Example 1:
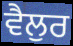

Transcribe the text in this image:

ਵੈਲੁਰ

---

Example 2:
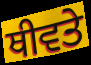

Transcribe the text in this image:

ਥੀਵਤੇ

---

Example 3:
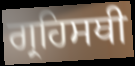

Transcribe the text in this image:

ਗ੍ਰਹਿਸਥੀ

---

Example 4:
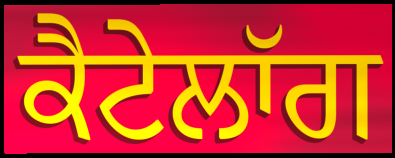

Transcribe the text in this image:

ਕੈਟੇਲਾੱਗ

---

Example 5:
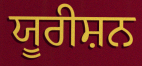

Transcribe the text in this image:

ਯੂਰੀਸ਼ਨ